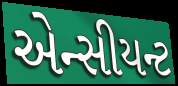
એન્સીયન્ટ